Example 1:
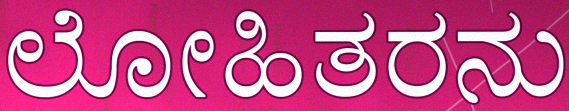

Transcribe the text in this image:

ಲೋಹಿತರನು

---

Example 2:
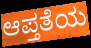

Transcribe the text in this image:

ಆಪ್ತತೆಯ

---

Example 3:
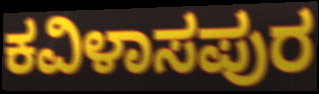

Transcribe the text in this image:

ಕವಿಳಾಸಪುರ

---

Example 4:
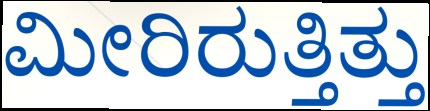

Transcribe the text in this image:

ಮೀರಿರುತ್ತಿತ್ತು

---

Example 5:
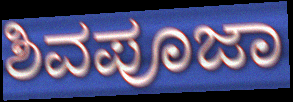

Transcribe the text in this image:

ಶಿವಪೂಜಾ